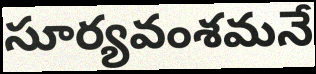
సూర్యవంశమనే